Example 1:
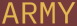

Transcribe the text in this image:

ARMY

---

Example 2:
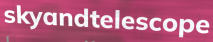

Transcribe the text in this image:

skyandtelescope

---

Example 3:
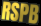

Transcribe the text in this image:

RSPB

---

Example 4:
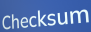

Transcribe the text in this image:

Checksum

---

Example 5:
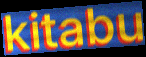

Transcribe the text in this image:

kitabu